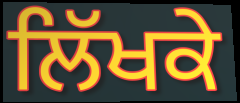
ਲਿੱਖਕੇ